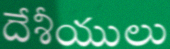
దేశీయులు